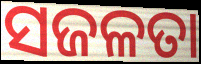
ସଜଳତା